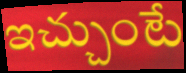
ఇచ్చుంటే